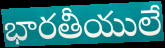
భారతీయులే